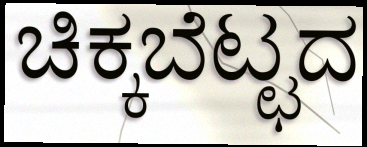
ಚಿಕ್ಕಬೆಟ್ಟದ